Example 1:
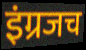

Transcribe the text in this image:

इंग्रजच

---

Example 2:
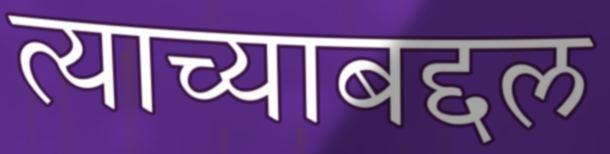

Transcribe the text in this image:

त्याच्याबद्दल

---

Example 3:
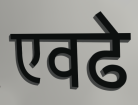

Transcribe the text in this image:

एवढे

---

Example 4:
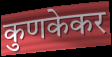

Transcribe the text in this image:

कुणकेकर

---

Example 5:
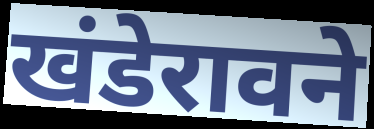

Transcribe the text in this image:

खंडेरावने